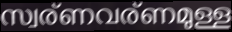
സ്വര്ണവര്ണമുള്ള